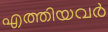
എത്തിയവർ